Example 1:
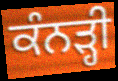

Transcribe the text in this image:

ਕੰਨੜ੍ਹੀ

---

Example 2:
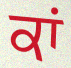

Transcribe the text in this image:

ਕਾਂ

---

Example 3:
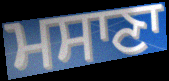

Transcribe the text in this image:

ਮਸਾਣਾ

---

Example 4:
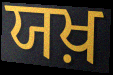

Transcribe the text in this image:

ਯਖ਼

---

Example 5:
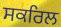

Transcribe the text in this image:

ਸਕਰਿਲ